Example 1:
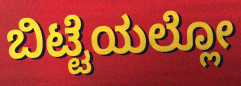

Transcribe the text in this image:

ಬಿಟ್ಟೆಯಲ್ಲೋ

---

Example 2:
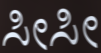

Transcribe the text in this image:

ಸೀಸೀ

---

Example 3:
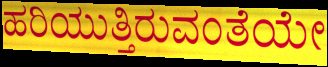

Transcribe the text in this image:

ಹರಿಯುತ್ತಿರುವಂತೆಯೇ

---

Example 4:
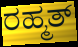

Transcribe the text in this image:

ರಹ್ಮತ್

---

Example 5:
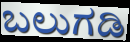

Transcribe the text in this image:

ಬಲುಗಡಿ